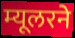
म्यूलरने